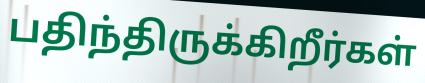
பதிந்திருக்கிறீர்கள்